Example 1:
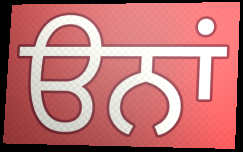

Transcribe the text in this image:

ੳਨਾਂ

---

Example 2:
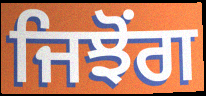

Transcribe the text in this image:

ਜਿਝੋਂਗ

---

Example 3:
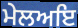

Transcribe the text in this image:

ਮੇਲਅਇ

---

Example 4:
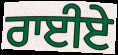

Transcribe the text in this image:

ਰਾਈਏ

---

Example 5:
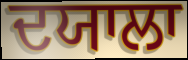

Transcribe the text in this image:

ਦਯਾਲਾ